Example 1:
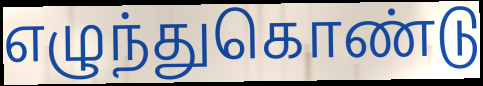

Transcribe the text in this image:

எழுந்துகொண்டு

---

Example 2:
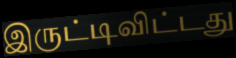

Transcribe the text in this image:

இருட்டிவிட்டது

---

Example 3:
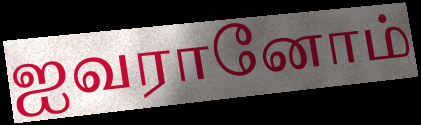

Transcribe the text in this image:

ஐவரானோம்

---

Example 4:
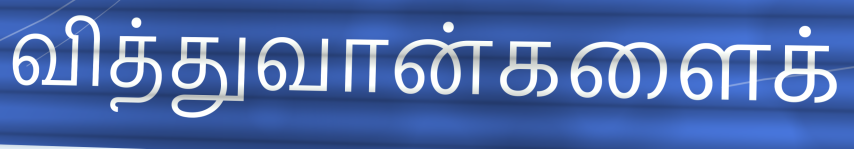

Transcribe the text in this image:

வித்துவான்களைக்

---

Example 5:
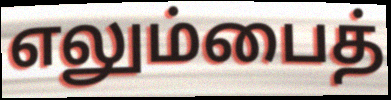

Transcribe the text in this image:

எலும்பைத்